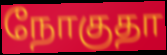
நோகுதா